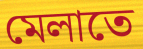
মেলাতে